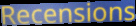
Recensions